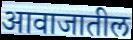
आवाजातील